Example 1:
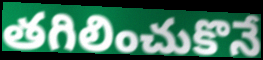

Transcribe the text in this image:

తగిలించుకొనే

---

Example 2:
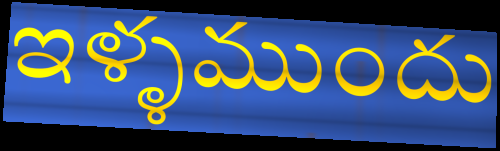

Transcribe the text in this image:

ఇళ్ళముందు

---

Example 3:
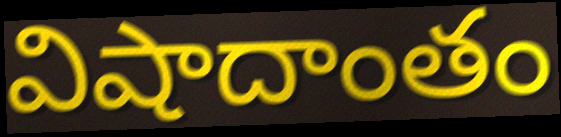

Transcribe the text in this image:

విషాదాంతం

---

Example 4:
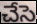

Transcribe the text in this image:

చేసె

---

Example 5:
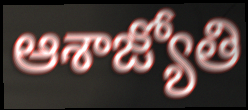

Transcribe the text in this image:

ఆశాజ్యోతి